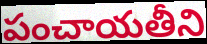
పంచాయతీని